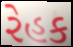
રેહક